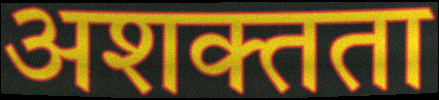
अशक्‍तता